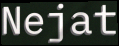
Nejat